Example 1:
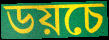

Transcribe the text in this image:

ডয়চে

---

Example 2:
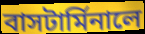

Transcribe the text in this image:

বাসটার্মিনালে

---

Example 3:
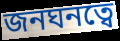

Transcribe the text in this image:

জনঘনত্বে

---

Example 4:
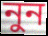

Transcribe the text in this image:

নুন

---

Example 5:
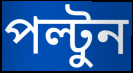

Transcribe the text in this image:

পল্টুন